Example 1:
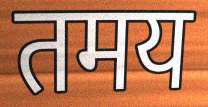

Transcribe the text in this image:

तमय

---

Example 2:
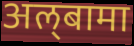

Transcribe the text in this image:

अल्बामा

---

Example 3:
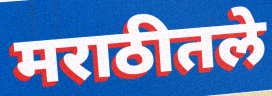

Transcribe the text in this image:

मराठीतले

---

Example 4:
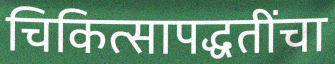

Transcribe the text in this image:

चिकित्सापद्धतींचा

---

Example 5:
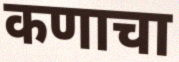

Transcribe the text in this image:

कणाचा